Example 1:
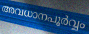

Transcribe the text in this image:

അവധാനപൂർവ്വം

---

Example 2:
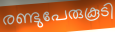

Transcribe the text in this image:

രണ്ടുപേരുകൂടി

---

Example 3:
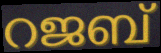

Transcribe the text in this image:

റജബ്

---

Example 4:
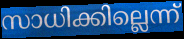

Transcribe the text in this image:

സാധിക്കില്ലെന്ന്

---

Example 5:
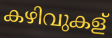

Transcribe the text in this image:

കഴിവുകള്